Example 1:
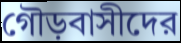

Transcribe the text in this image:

গৌড়বাসীদের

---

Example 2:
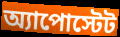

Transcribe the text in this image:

অ্যাপোস্টেট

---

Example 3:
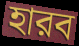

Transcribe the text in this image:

হারব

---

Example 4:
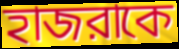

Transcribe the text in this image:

হাজরাকে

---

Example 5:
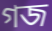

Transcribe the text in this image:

গজ